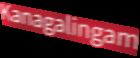
Kanagalingam